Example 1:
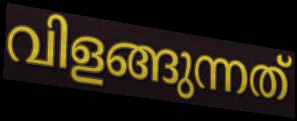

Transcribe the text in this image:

വിളങ്ങുന്നത്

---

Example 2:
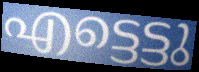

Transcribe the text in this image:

എട്ടെട്ടു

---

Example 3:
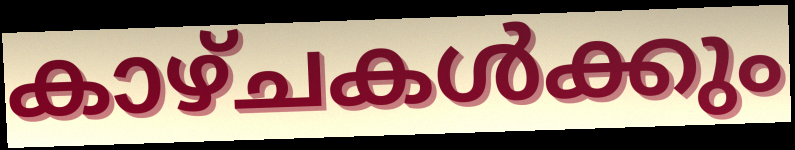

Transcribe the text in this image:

കാഴ്ചകൾക്കും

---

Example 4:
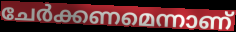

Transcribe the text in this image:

ചേർക്കണമെന്നാണ്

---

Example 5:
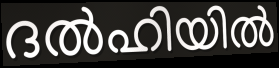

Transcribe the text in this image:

ദൽഹിയിൽ